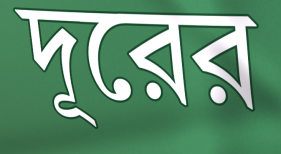
দূরের